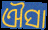
ଐସା